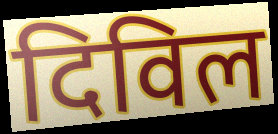
दिविल